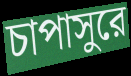
চাপাসুরে